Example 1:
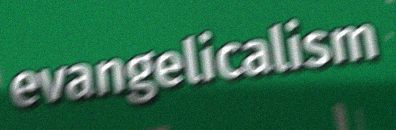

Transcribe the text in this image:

evangelicalism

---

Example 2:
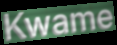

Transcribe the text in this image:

Kwame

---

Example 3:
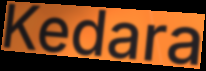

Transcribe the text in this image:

Kedara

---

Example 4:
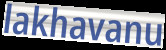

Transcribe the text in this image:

lakhavanu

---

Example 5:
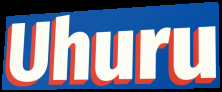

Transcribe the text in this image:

Uhuru